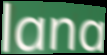
lana